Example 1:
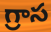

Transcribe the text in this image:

గ్రాస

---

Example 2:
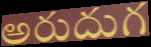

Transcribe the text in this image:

అరుదుగ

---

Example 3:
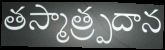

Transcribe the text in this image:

తస్మాత్ర్పదాన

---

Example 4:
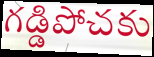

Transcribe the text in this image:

గడ్డిపోచకు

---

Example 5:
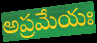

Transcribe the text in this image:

అప్రమేయః